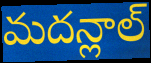
మదన్లాల్